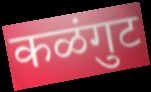
कळंगुट